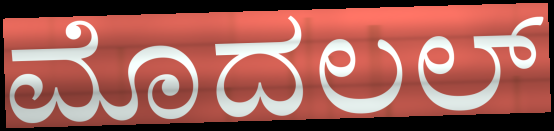
ಮೊದಲಲ್